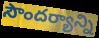
సౌందర్యాన్ని